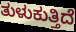
ತುಳುಕುತ್ತಿದೆ